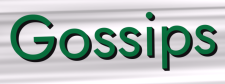
Gossips